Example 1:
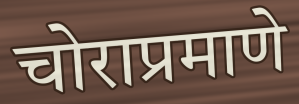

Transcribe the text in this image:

चोराप्रमाणे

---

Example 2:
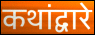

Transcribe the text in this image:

कथांद्वारे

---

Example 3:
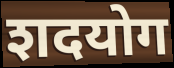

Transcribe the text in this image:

शदयोग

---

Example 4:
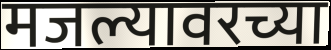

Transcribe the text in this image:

मजल्यावरच्या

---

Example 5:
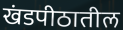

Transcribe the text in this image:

खंडपीठातील